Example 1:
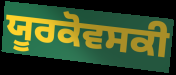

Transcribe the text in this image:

ਯੂਰਕੋਵਸਕੀ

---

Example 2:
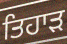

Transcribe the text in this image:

ਤਿਹਾੜ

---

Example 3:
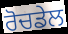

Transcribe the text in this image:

ਰੋਚਡੇਲ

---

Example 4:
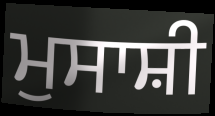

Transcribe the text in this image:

ਮੁਸਾਸ਼ੀ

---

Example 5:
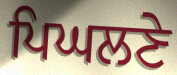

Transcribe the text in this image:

ਪਿਘਲਣੇ